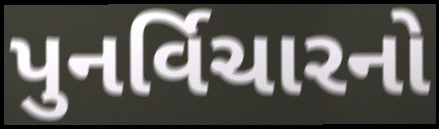
પુનર્વિચારનો